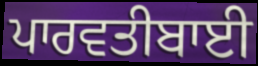
ਪਾਰਵਤੀਬਾਈ